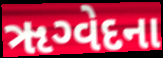
ૠગ્વેદના